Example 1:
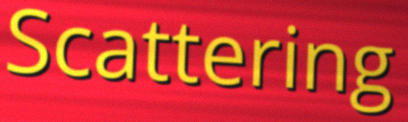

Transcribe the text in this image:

Scattering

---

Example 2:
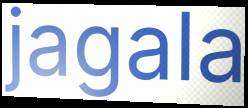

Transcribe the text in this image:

jagala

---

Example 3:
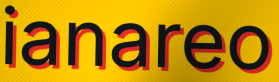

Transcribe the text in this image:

ianareo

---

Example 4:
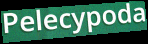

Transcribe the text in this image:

Pelecypoda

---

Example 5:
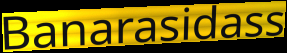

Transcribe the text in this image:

Banarasidass